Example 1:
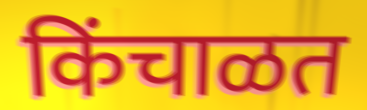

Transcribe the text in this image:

किंचाळत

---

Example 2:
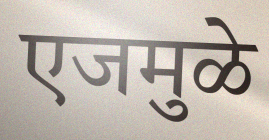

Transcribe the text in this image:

एजमुळे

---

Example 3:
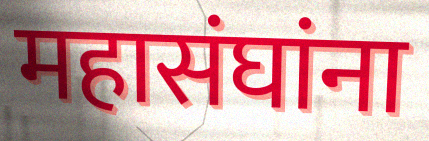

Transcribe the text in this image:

महासंघांना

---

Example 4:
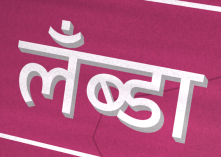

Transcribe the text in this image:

लँब्डा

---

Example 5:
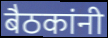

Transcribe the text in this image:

बैठकांनी